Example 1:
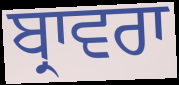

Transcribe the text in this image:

ਬ੍ਰਾਵਰਾ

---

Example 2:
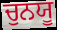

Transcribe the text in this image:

ਚੁਨਯੂ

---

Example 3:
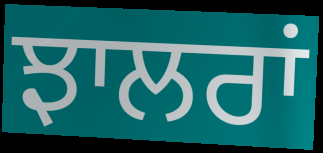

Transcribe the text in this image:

ਝਾਲਰਾਂ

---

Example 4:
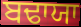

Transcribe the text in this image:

ਬਢਾਯਾ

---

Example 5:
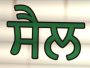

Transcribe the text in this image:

ਸੈਲ